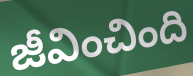
జీవించింది